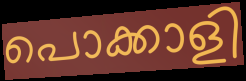
പൊക്കാളി